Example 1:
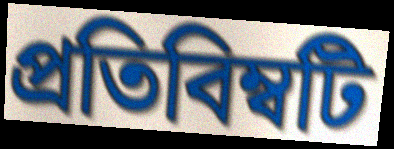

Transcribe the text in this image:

প্রতিবিম্বটি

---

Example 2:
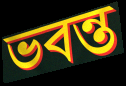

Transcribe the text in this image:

ভবন্ত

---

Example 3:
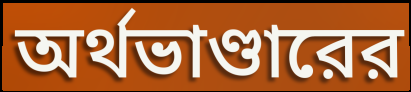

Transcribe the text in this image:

অর্থভাণ্ডারের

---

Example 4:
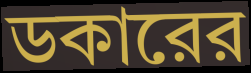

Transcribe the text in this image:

ডকারের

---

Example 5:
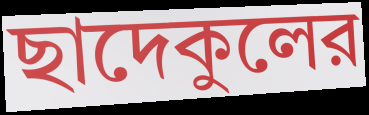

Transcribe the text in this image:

ছাদেকুলের